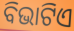
ବିଭାଟିଏ